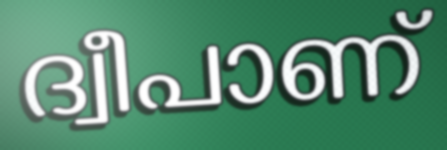
ദ്വീപാണ്